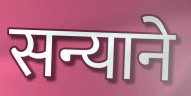
सन्याने